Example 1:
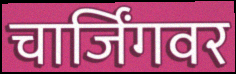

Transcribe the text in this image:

चार्जिंगवर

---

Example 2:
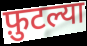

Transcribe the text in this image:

फ़ुटल्या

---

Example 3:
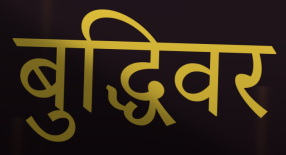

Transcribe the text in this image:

बुद्धिवर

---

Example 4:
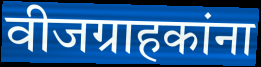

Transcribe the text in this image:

वीजग्राहकांना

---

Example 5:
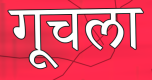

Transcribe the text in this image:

गूचला